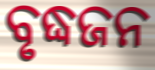
ବୃଦ୍ଧଜନ